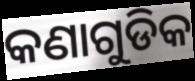
କଣାଗୁଡିକ